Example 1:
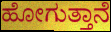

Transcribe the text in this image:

ಹೋಗುತ್ತಾನೆ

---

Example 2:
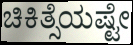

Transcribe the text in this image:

ಚಿಕಿತ್ಸೆಯಷ್ಟೇ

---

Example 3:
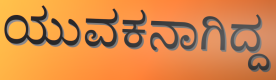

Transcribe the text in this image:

ಯುವಕನಾಗಿದ್ದ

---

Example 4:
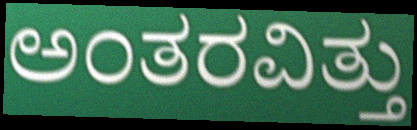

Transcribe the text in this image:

ಅಂತರವಿತ್ತು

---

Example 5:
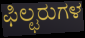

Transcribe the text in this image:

ಫಿಲ್ಟರುಗಳ